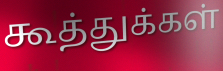
கூத்துக்கள்